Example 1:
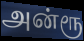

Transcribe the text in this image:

அன்ரூ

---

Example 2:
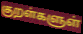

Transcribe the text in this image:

குறள்களுள்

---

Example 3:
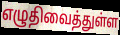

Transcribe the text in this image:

எழுதிவைத்துள்ள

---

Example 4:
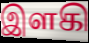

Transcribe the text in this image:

இளகி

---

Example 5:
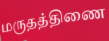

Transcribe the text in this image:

மருதத்திணை